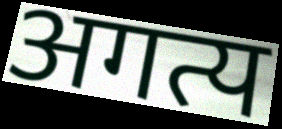
अगत्य